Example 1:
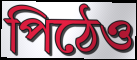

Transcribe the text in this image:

পিঠেও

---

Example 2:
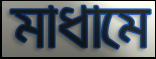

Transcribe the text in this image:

মাধামে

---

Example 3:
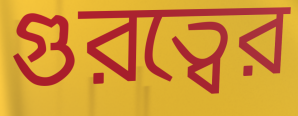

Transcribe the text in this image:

গুরত্বের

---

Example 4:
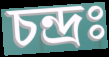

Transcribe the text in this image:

চন্দ্রঃ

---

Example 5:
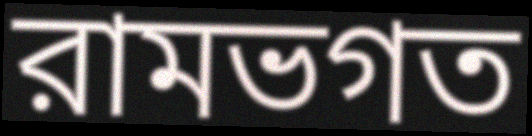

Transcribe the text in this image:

রামভগত